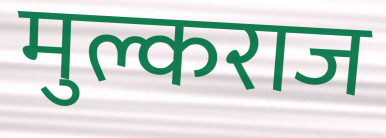
मुल्कराज